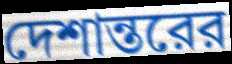
দেশান্তরের